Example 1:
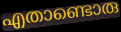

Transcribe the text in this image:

എതാണ്ടൊരു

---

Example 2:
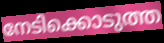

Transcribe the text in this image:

നേടിക്കൊടുത്ത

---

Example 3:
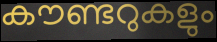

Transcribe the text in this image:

കൗണ്ടറുകളും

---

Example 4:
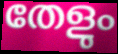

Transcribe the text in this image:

തേളും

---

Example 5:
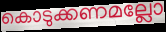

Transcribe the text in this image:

കൊടുക്കണമല്ലോ